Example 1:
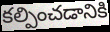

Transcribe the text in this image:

కల్పించడానికి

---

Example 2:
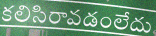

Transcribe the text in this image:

కలిసిరావడంలేదు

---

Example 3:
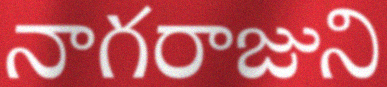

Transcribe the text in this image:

నాగరాజుని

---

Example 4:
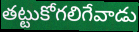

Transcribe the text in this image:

తట్టుకోగలిగేవాడు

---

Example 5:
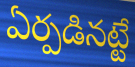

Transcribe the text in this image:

ఏర్పడినట్టే